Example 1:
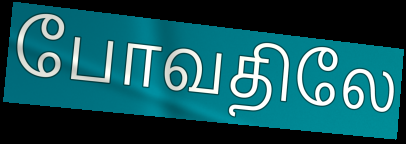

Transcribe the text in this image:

போவதிலே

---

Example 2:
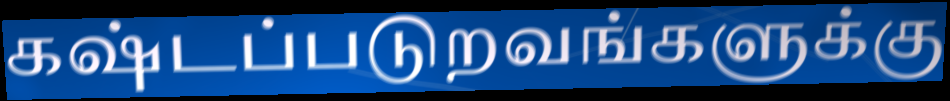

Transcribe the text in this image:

கஷ்டப்படுறவங்களுக்கு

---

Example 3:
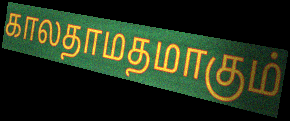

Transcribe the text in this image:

காலதாமதமாகும்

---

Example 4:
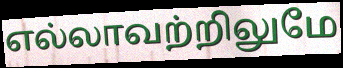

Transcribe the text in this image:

எல்லாவற்றிலுமே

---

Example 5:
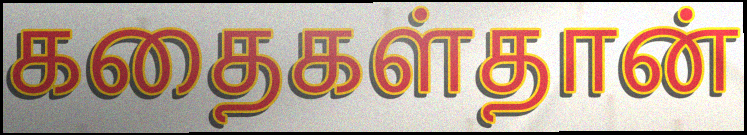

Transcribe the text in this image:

கதைகள்தான்